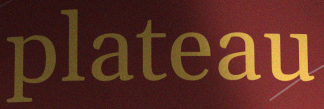
plateau